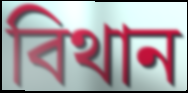
বিথান